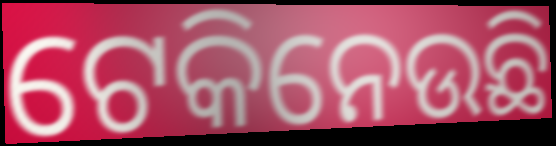
ଟେକିନେଉଛି